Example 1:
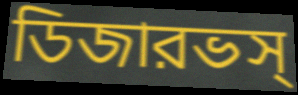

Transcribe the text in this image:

ডিজারভস্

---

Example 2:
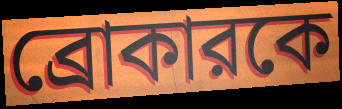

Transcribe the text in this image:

ব্রোকারকে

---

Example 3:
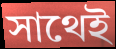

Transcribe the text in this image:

সাথেই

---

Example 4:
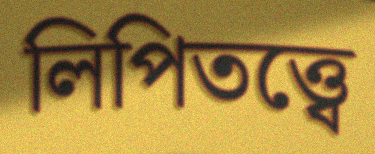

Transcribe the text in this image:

লিপিতত্ত্বে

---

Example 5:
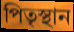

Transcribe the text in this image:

পিতৃস্থান